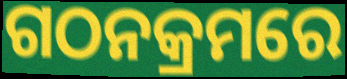
ଗଠନକ୍ରମରେ